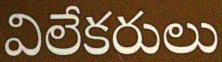
విలేకరులు